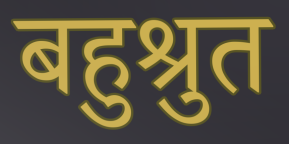
बहुश्रुत